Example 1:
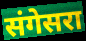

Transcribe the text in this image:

संगेसरा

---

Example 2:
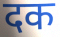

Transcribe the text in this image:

दक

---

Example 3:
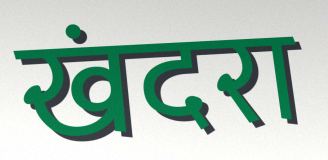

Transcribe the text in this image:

खंदरा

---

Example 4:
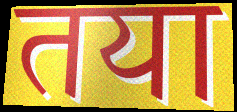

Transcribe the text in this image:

तया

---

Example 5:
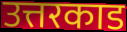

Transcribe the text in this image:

उत्तरकाड